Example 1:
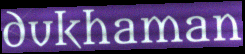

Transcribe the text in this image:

dukhaman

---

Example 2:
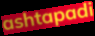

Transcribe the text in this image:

ashtapadi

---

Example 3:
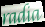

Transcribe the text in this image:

radia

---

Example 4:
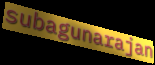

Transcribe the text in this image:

subagunarajan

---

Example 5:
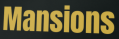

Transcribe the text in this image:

Mansions